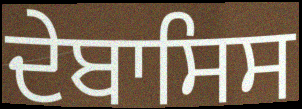
ਦੇਬਾਸਿਸ